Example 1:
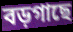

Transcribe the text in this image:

বড়গাছে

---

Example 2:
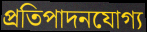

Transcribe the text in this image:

প্রতিপাদনযোগ্য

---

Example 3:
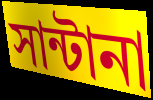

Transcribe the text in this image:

সান্টানা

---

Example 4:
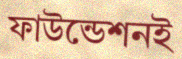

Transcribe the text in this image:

ফাউন্ডেশনই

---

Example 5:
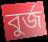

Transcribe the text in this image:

বুর্জ